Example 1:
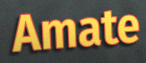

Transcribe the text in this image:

Amate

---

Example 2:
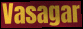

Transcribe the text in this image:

Vasagar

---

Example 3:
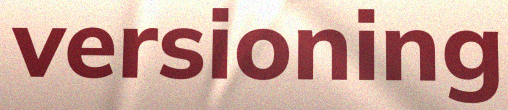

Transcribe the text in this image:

versioning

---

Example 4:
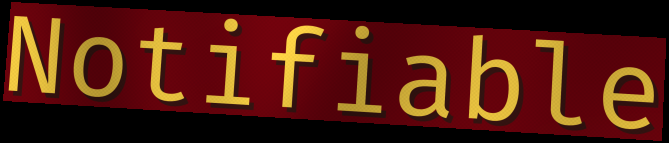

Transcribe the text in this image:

Notifiable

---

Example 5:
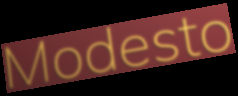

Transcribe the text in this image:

Modesto